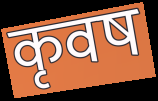
कृवष